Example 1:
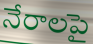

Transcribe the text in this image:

నేరాలపై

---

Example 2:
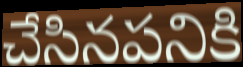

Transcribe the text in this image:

చేసినపనికి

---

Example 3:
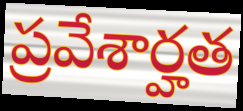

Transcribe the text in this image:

ప్రవేశార్హత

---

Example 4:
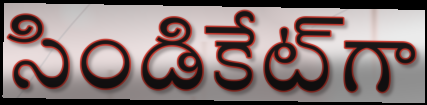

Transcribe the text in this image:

సిండికేట్‌గా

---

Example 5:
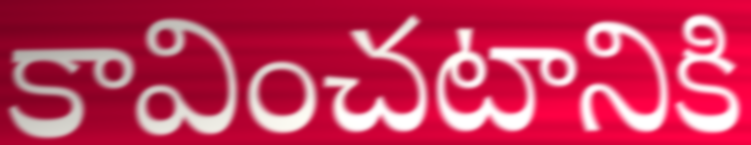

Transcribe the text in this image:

కావించటానికి